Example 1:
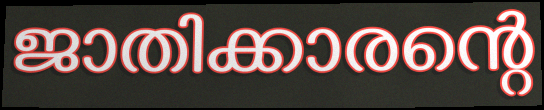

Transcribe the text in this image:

ജാതിക്കാരന്റെ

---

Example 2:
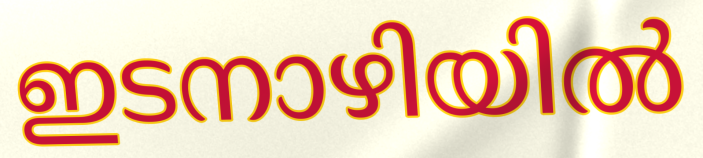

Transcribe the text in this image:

ഇടനാഴിയിൽ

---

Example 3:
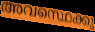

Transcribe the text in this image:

അവസ്ഥെക്കു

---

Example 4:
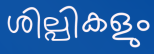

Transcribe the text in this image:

ശില്പികളും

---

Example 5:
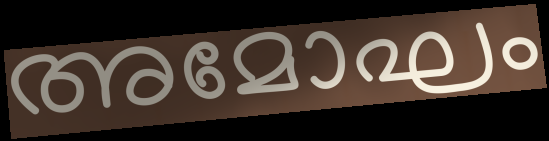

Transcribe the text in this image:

അമോഘം